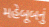
મહેબૂબનું